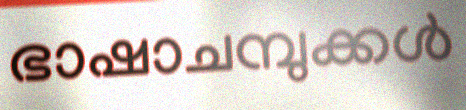
ഭാഷാചമ്പുക്കൾ